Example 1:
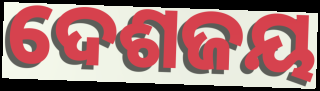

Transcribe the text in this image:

ଦେଶଜୟ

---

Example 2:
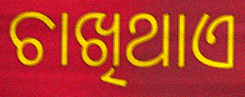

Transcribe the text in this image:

ଚାଖିଥାଏ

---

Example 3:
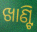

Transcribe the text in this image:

ଖାଣ୍ଟି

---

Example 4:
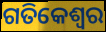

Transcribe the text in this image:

ଗତିକେଶ୍ବର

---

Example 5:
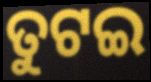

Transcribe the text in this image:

ତୁଟଇ